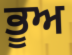
ਭੂਅ